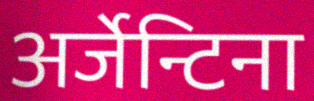
अर्जेन्टिना